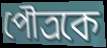
পৌত্রকে